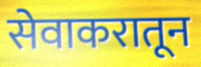
सेवाकरातून